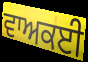
ਵਾਅਕਈ